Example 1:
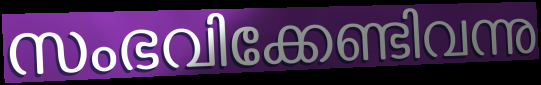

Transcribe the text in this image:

സംഭവിക്കേണ്ടിവന്നു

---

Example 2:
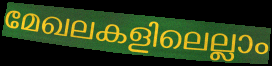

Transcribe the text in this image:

മേഖലകളിലെല്ലാം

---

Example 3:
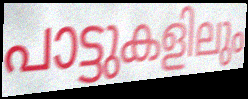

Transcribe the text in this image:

പാട്ടുകളിലും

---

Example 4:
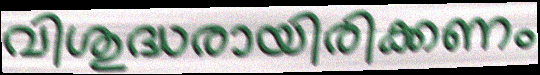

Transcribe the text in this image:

വിശുദ്ധരായിരിക്കണം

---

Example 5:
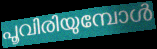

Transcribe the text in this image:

പൂവിരിയുമ്പോൾ